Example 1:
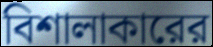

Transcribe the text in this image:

বিশালাকারের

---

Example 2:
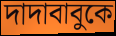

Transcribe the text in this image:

দাদাবাবুকে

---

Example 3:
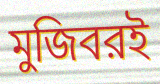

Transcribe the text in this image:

মুজিবরই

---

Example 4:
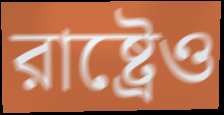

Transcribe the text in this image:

রাষ্ট্রেও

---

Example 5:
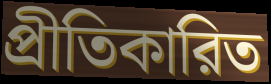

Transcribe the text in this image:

প্রীতিকারিত